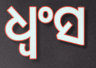
ଧ୍ୱଂସ